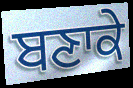
ਬਣਾਕੇ